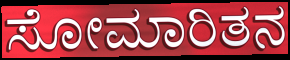
ಸೋಮಾರಿತನ